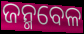
ଜନ୍ମବେଳ